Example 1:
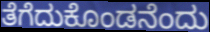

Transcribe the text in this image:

ತೆಗೆದುಕೊಂಡನೆಂದು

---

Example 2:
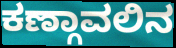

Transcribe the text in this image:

ಕಣ್ಗಾವಲಿನ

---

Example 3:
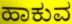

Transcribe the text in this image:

ಹಾಕುವ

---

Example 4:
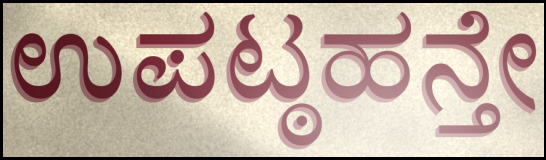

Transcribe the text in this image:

ಉಪಟ್ಠಹನ್ತೇ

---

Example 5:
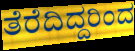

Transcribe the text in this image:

ತೆರೆದಿದ್ದರಿಂದ